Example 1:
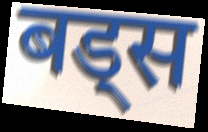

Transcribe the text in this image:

बड्स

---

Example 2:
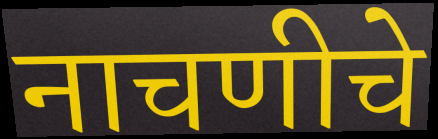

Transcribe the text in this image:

नाचणीचे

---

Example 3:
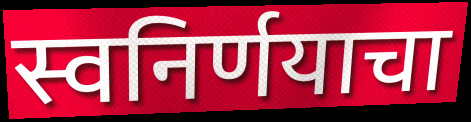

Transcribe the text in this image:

स्वनिर्णयाचा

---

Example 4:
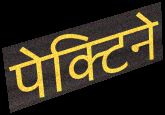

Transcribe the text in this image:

पेक्टिने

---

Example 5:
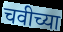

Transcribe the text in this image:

चवीच्या